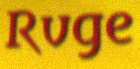
Ruge